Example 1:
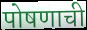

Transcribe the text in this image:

पोषणाची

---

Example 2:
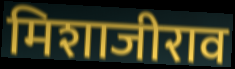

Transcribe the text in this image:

मिशाजीराव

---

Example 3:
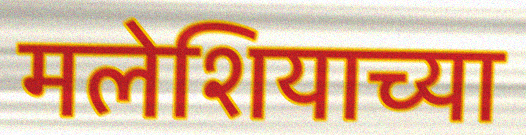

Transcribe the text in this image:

मलेशियाच्या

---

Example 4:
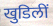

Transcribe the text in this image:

खुडिलीं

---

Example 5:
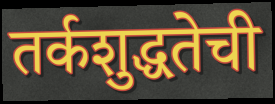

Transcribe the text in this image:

तर्कशुद्धतेची